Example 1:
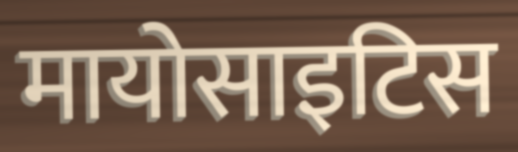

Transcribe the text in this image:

मायोसाइटिस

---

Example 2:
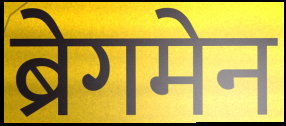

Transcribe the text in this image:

ब्रेगमेन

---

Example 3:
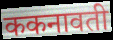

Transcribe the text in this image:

ककनावती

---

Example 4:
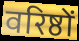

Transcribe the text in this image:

वरिष्ठों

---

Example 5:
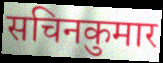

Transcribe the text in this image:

सचिनकुमार